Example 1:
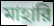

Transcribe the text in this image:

মাহারি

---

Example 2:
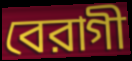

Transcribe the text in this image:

বেরাগী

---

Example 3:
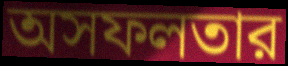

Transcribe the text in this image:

অসফলতার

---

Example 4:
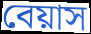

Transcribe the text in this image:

বেয়াস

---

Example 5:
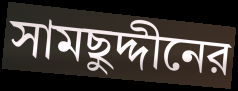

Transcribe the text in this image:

সামছুদ্দীনের